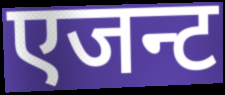
एजन्ट